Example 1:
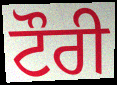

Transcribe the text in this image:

ਟੌਰੀ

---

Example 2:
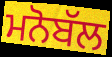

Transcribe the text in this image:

ਮਨੋਬੱਲ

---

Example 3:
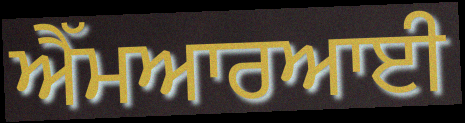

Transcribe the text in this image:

ਐੱਮਆਰਆਈ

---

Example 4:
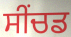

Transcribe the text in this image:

ਸੀਂਚਡ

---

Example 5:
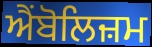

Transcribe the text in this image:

ਐਂਬੋਲਿਜ਼ਮ